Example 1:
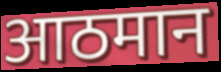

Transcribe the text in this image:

आठमान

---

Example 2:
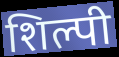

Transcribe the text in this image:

शिल्‍पी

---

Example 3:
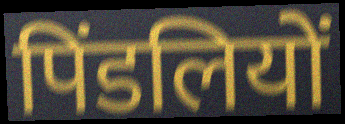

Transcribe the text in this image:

पिंडलियों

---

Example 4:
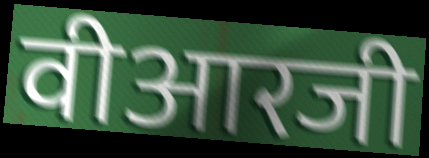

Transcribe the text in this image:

वीआरजी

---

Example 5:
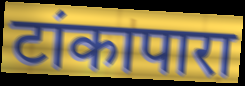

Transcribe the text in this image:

टांकापारा